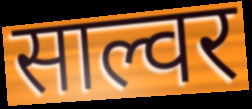
साल्वर